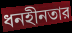
ধনহীনতার